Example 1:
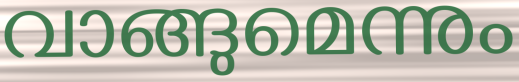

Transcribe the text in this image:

വാങ്ങുമെന്നും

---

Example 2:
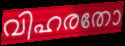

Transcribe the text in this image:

വിഹരതോ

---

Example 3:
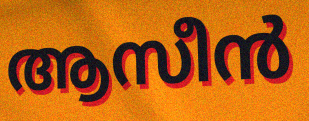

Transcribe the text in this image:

ആസീൻ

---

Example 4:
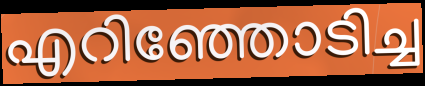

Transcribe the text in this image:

എറിഞ്ഞോടിച്ച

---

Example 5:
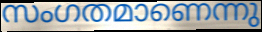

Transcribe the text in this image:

സംഗതമാണെന്നു